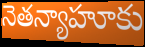
నెతన్యాహూకు